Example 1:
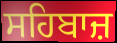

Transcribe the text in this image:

ਸਹਿਬਾਜ਼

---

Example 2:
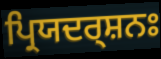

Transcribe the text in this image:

ਪ੍ਰਿਯਦਰ੍ਸ਼ਨਃ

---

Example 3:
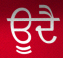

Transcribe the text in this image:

ਊੁਦੈ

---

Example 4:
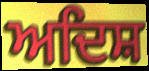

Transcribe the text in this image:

ਅਦਿਸ਼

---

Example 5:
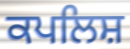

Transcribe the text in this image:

ਕਪਲਿਸ਼